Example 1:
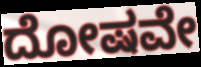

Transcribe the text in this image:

ದೋಷವೇ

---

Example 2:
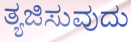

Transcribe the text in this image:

ತ್ಯಜಿಸುವುದು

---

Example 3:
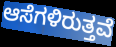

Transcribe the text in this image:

ಆಸೆಗಳಿರುತ್ತವೆ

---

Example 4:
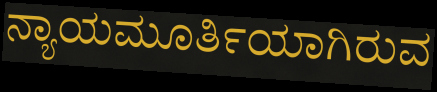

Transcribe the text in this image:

ನ್ಯಾಯಮೂರ್ತಿಯಾಗಿರುವ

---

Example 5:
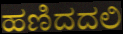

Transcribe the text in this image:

ಹಣಿದದಲಿ